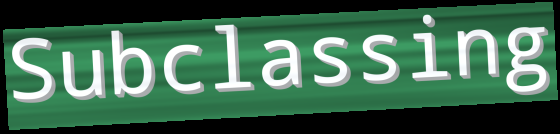
Subclassing